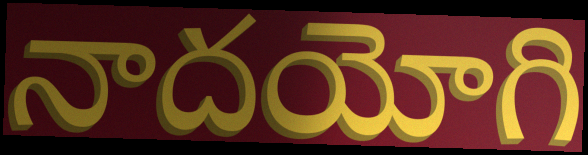
నాదయోగి